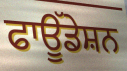
ਫਾਊੱਡੇਸ਼ਨ